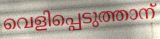
വെളിപ്പെടുത്താന്